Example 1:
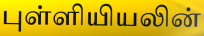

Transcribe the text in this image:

புள்ளியியலின்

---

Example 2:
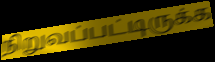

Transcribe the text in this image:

நிறுவப்பட்டிருக்க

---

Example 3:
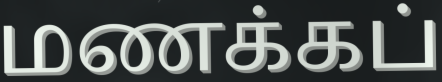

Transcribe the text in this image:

மணக்கப்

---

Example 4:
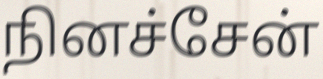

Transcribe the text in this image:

நினச்சேன்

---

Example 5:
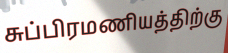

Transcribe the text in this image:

சுப்பிரமணியத்திற்கு